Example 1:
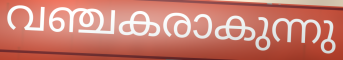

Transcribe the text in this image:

വഞ്ചകരാകുന്നു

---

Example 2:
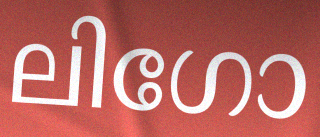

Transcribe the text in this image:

ലിഗോ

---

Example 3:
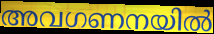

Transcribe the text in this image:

അവഗണനയിൽ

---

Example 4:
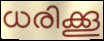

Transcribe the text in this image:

ധരിക്കൂ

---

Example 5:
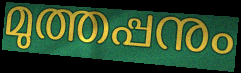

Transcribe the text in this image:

മുത്തപ്പനും